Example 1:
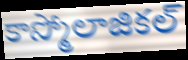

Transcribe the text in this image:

కాస్మోలాజికల్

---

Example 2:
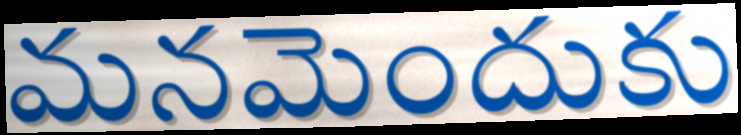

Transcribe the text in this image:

మనమెందుకు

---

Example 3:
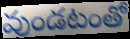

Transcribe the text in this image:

వుండటంతో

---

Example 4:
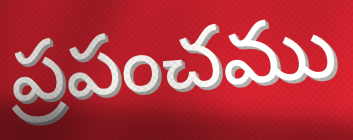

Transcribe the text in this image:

ప్రపంచము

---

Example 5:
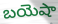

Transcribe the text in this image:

బయెషా